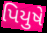
પિયુષે